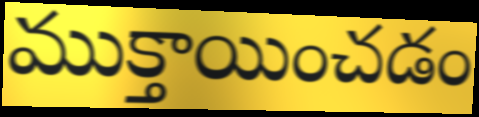
ముక్తాయించడం